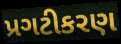
પ્રગટીકરણ